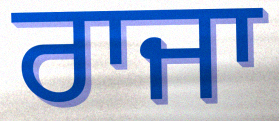
ਰਾਜਾ